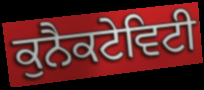
ਕੁਨੈਕਟੇਵਿਟੀ